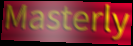
Masterly